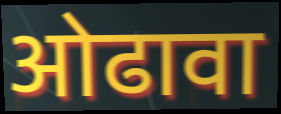
ओढावा